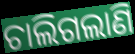
ଚାଲିଗଲାଣି